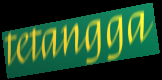
tetangga